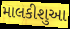
માલકીશુઆ